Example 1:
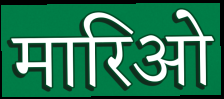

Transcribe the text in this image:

मारिओ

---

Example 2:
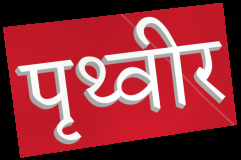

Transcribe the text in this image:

पृथ्वीर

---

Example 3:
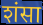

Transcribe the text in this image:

शंसा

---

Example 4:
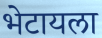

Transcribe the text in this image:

भेटायला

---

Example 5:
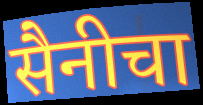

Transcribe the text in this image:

सैनीचा